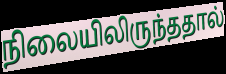
நிலையிலிருந்ததால்